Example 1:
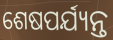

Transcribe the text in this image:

ଶେଷପର୍ଯ୍ୟନ୍ତ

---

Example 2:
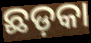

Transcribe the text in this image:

ଛଡ଼କା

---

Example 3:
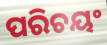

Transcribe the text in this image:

ପରିଚୟଂ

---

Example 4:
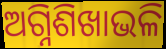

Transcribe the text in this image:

ଅଗ୍ନିଶିଖାଭଳି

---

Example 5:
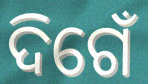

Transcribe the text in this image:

ଦିଗେଁ